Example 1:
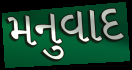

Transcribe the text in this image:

મનુવાદ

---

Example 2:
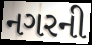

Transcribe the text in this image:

નગરની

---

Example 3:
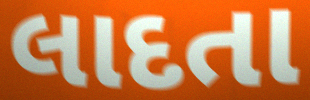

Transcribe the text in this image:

લાદતા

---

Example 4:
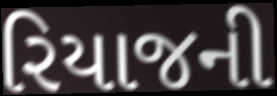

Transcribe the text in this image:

રિયાજની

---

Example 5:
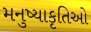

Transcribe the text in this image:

મનુષ્યાકૃતિઓ